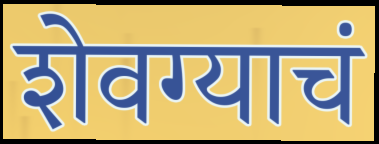
शेवग्याचं